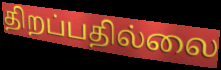
திறப்பதில்லை